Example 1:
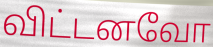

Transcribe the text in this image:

விட்டனவோ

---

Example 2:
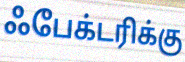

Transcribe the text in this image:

ஃபேக்டரிக்கு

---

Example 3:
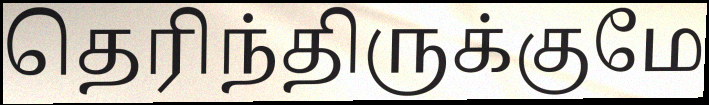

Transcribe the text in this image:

தெரிந்திருக்குமே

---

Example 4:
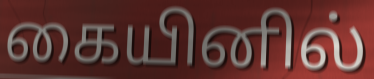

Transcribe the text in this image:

கையினில்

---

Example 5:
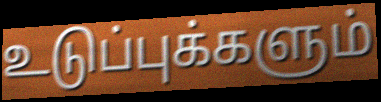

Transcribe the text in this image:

உடுப்புக்களும்